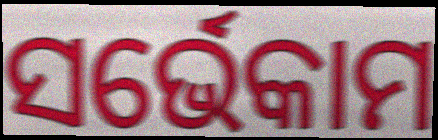
ସର୍ଭେକାମ